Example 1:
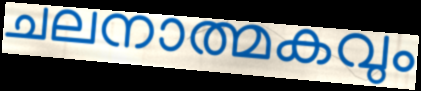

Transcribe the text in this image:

ചലനാത്മകവും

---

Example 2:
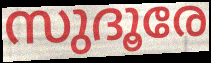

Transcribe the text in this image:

സുദൂരേ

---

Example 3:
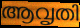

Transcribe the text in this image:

ആവൃതി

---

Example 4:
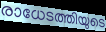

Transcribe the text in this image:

രാധേടത്തിയുടെ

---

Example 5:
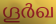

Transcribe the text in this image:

ഗൂർഖ